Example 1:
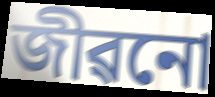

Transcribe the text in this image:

জীৱনো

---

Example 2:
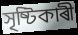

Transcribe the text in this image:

সৃষ্টিকাৰী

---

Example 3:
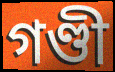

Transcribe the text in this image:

গণ্ডী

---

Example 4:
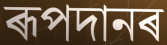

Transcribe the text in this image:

ৰূপদানৰ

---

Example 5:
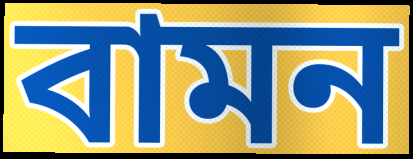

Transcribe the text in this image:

বামন